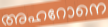
അഹറോനെ